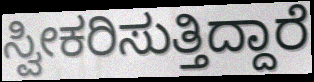
ಸ್ವೀಕರಿಸುತ್ತಿದ್ದಾರೆ